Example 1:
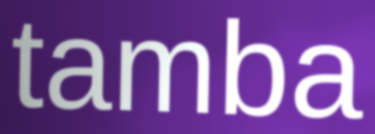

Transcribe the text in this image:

tamba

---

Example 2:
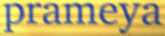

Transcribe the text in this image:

prameya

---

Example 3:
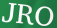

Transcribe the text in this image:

JRO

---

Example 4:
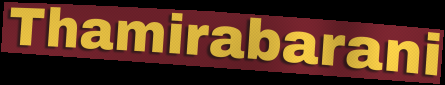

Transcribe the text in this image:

Thamirabarani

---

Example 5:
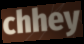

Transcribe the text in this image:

chhey